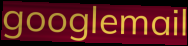
googlemail